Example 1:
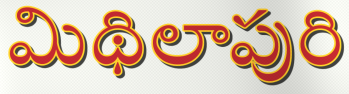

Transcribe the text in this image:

మిథిలాపురి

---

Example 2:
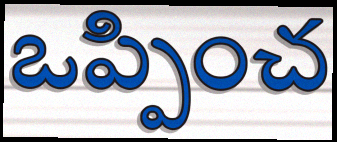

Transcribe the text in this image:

ఒప్పించ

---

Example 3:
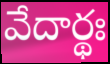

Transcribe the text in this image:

వేదార్థః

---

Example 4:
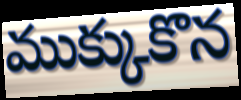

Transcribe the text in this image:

ముక్కుకొన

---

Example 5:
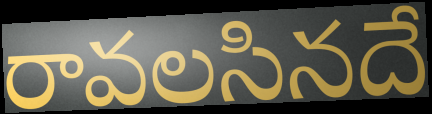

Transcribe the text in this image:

రావలసినదే